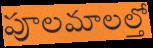
పూలమాలల్తో